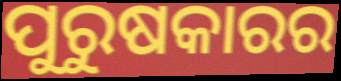
ପୁରୁଷକାରର